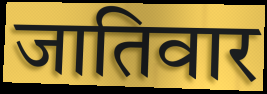
जातिवार